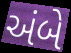
અંબે